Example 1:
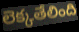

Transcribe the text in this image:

లెక్కతేలింది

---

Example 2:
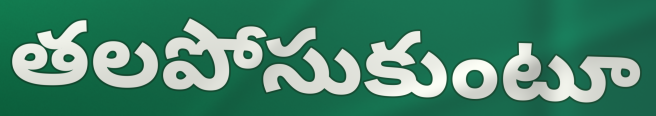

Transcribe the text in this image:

తలపోసుకుంటూ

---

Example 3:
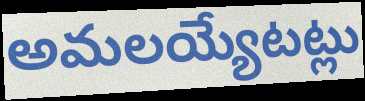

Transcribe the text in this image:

అమలయ్యేటట్లు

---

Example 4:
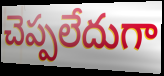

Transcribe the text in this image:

చెప్పలేదుగా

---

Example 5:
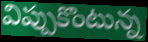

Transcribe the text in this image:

విప్పుకొంటున్న